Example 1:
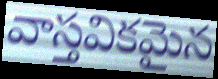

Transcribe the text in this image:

వాస్తవికమైన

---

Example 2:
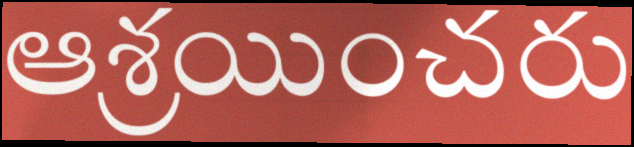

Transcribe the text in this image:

ఆశ్రయించరు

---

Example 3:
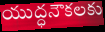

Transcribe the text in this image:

యుద్ధనౌకలకు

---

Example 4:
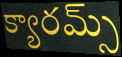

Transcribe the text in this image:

క్యారమ్స్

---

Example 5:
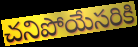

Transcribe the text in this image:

చనిపోయేసరికి